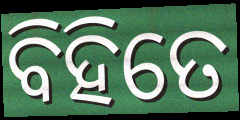
ବିହିତେ